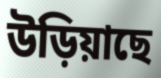
উড়িয়াছে